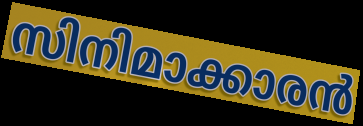
സിനിമാക്കാരൻ